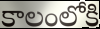
కాలంలోకి